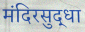
मंदिरसुद्धा